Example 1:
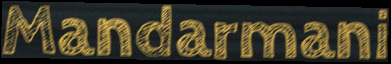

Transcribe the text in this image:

Mandarmani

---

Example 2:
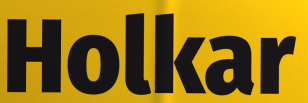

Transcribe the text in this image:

Holkar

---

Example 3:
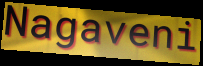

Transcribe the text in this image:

Nagaveni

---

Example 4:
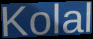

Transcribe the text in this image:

Kolal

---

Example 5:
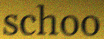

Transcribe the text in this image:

schoo